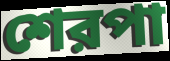
শেরপা